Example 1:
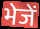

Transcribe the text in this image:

भेजें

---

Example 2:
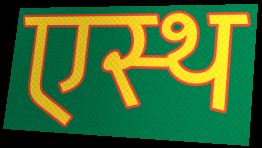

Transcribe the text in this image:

एस्थ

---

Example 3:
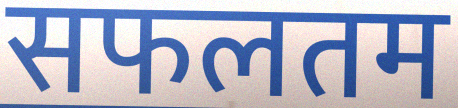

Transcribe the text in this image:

सफलतम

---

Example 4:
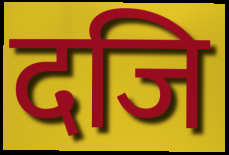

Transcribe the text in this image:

दजि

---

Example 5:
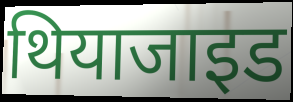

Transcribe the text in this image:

थियाजाइड